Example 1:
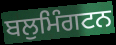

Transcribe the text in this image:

ਬਲੁਮਿੰਗਟਨ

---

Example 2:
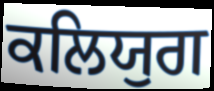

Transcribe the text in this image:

ਕਲਿਯੁਗ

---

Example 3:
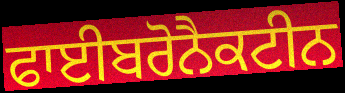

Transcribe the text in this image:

ਫਾਈਬਰੋਨੈਕਟੀਨ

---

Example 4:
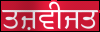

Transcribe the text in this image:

ਤਜ਼ਵੀਜਤ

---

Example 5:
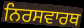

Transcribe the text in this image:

ਨਿਰਸਵਾਰਥ